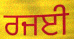
ਰਜਈ